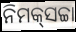
ନିମକ୍‍ସଚ୍ଚା